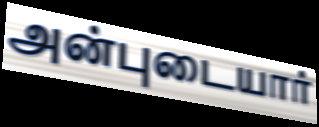
அன்புடையார்